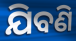
ଯିବଣି